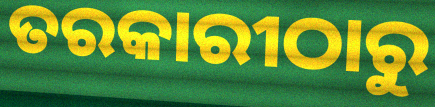
ତରକାରୀଠାରୁ